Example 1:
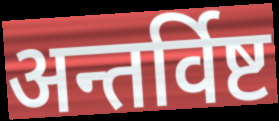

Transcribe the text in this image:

अन्तर्विष्ट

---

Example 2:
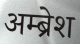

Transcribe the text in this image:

अम्ब्रेश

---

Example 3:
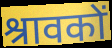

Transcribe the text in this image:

श्रावकों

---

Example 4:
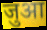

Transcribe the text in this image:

जुआ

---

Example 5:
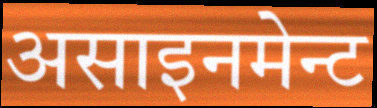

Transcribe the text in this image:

असाइनमेन्ट